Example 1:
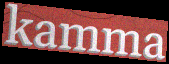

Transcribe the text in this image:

kamma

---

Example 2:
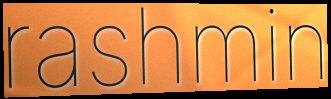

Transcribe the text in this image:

rashmin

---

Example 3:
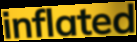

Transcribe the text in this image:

inflated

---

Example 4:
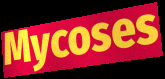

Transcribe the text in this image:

Mycoses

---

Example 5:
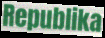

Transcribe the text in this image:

Republika